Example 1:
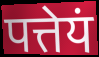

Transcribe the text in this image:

पत्तेयं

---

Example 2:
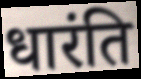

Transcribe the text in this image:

धारंति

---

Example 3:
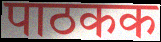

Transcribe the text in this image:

पाठकक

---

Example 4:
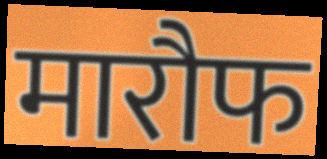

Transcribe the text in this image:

मारौफ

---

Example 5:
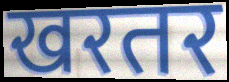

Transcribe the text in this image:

खरतर